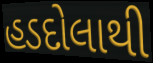
હડદોલાથી